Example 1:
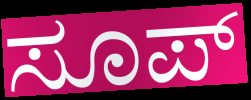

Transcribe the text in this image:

ಸೂಪ್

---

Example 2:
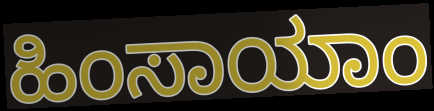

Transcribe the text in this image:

ಹಿಂಸಾಯಾಂ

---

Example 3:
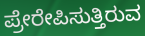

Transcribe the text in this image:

ಪ್ರೇರೇಪಿಸುತ್ತಿರುವ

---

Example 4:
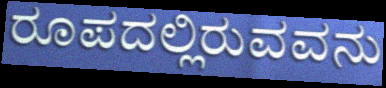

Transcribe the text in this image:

ರೂಪದಲ್ಲಿರುವವನು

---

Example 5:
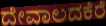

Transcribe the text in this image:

ದೇವಾಲದಕೆರೆ